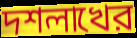
দশলাখের